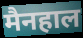
मैनहाल